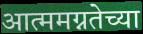
आत्ममग्नतेच्या